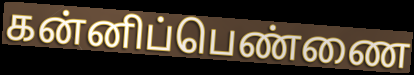
கன்னிப்பெண்ணை